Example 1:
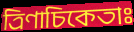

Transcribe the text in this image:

ত্রিণাচিকেতাঃ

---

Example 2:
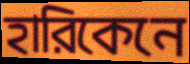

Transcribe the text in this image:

হারিকেনে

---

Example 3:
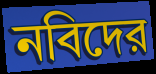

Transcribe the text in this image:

নবিদের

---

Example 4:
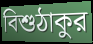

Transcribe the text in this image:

বিশুঠাকুর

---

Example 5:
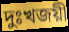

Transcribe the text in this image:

দুঃখজয়ী